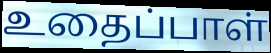
உதைப்பாள்